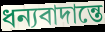
ধন্যবাদান্তে